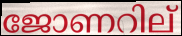
ജോണറില്